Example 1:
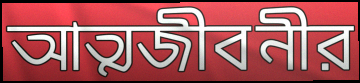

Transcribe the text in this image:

আত্মজীবনীর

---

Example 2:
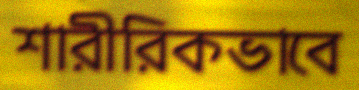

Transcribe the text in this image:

শারীরিকভাবে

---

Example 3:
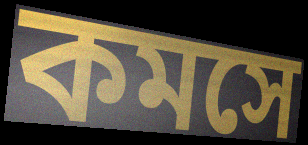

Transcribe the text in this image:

কমসে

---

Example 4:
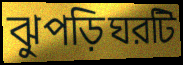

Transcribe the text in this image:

ঝুপড়িঘরটি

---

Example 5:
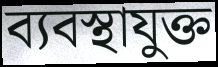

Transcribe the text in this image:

ব্যবস্থাযুক্ত